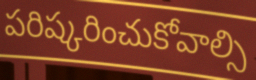
పరిష్కరించుకోవాల్సి